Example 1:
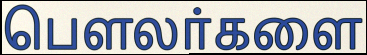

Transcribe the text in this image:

பௌலர்களை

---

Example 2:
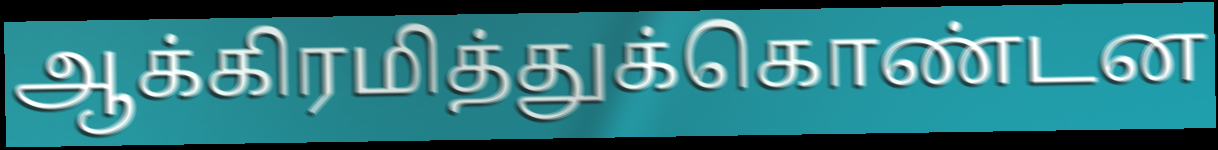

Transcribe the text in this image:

ஆக்கிரமித்துக்கொண்டன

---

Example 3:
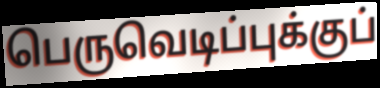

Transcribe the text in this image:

பெருவெடிப்புக்குப்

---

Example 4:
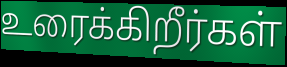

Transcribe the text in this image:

உரைக்கிறீர்கள்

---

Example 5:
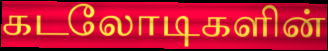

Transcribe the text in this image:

கடலோடிகளின்